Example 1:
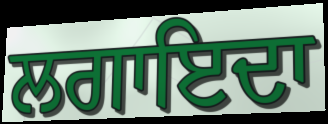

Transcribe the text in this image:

ਲਗਾਇਦਾ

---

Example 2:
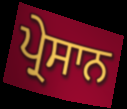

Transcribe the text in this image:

ਪ੍ਰੇਸਾਨ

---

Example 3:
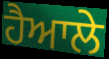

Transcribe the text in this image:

ਹੈਆਲੇ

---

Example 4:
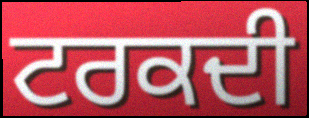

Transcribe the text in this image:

ਟਰਕਦੀ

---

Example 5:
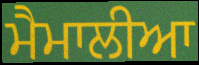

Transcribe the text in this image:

ਮੈਮਾਲੀਆ